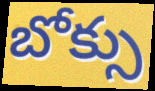
బోక్సు